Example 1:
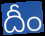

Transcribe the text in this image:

దీం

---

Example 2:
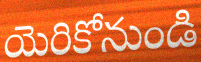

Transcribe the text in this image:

యెరికోనుండి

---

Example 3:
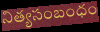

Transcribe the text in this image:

నిత్యసంబంధం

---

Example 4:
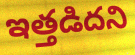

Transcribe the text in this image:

ఇత్తడిదని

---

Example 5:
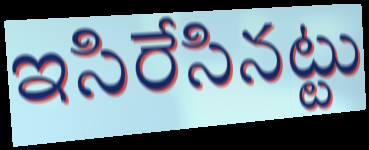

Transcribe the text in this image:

ఇసిరేసినట్టు